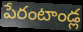
పేరంటాండ్ల